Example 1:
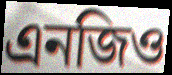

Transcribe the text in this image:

এনজিও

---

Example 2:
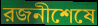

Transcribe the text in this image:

রজনীশেষে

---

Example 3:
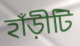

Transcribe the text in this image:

হাঁড়ীটি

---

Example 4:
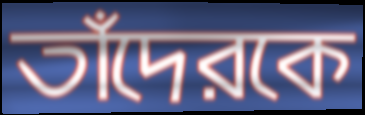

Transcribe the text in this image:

তাঁদেরকে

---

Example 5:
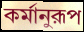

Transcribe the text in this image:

কর্মানুরূপ